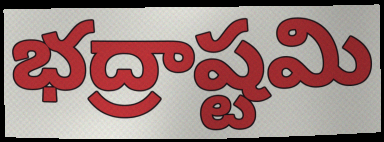
భద్రాష్టమి